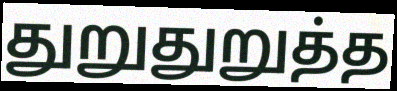
துறுதுறுத்த